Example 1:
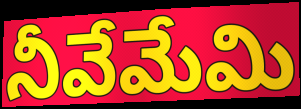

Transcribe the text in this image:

నీవేమేమి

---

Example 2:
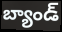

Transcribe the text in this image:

బ్యాండ్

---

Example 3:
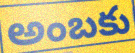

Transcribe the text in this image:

అంబకు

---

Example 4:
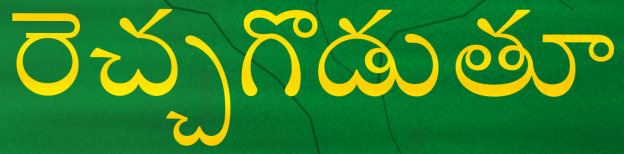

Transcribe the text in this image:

రెచ్చగొడుతూ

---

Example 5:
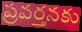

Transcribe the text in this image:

ప్రవర్తనకు